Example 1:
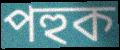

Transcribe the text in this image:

পহুক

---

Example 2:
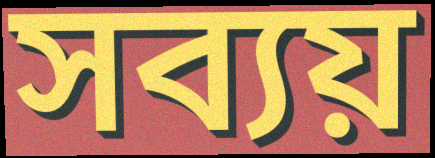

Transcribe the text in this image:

সব্যয়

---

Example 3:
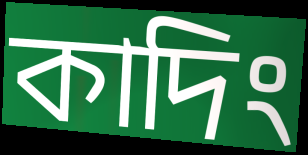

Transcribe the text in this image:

কাদিং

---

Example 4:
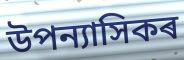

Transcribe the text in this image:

উপন্যাসিকৰ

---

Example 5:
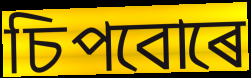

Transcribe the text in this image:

চিপবোৰে